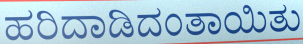
ಹರಿದಾಡಿದಂತಾಯಿತು